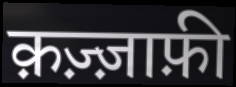
क़ज़्ज़ाफ़ी